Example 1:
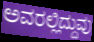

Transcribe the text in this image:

ಅವರಲ್ಲಿದ್ದುವು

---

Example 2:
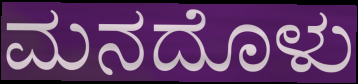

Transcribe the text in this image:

ಮನದೊಳು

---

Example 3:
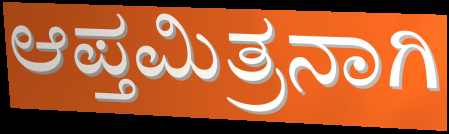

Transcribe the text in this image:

ಆಪ್ತಮಿತ್ರನಾಗಿ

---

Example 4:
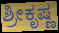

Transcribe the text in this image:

ಶ್ರೀಕೃಷ್ಣ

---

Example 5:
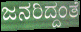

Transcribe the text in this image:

ಜನರಿದ್ದಂತೆ